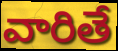
వారితే